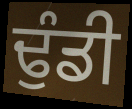
ਢੁੰਡੀ